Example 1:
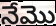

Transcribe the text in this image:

నేమొ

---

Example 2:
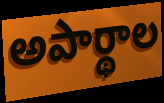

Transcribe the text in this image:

అపార్థాల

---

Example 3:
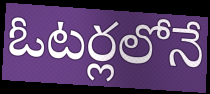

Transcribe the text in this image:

ఓటర్లలోనే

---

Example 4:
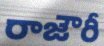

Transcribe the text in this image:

రాజౌరీ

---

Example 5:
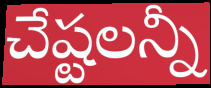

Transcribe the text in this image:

చేష్టలన్నీ